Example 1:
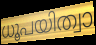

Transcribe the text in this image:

ധൂപയിത്വാ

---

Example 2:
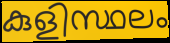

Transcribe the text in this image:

കുളിസ്ഥലം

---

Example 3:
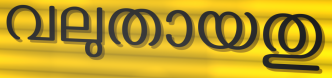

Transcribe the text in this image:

വലുതായതു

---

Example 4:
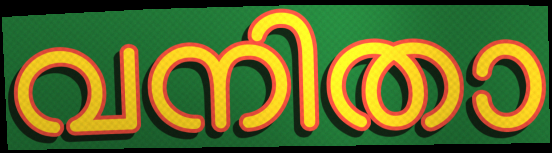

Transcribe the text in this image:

വനിതാ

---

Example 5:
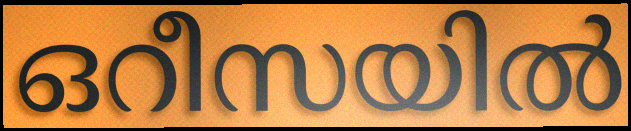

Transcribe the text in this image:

ഒറീസയിൽ